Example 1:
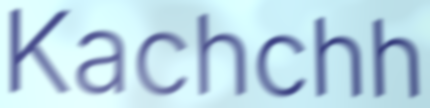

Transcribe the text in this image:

Kachchh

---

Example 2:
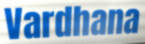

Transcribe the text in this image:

Vardhana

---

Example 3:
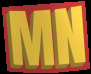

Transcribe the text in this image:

MN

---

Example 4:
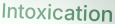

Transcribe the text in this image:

Intoxication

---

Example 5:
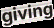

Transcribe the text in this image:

giving